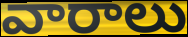
వారాలు